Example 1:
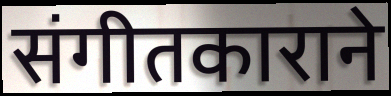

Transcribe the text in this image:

संगीतकाराने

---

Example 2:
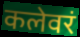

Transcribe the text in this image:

कलेवरं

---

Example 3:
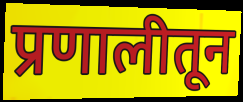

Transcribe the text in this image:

प्रणालीतून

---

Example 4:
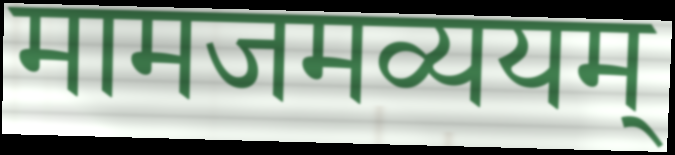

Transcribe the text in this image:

मामजमव्ययम्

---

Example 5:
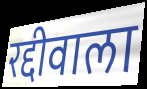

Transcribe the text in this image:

रद्दीवाला